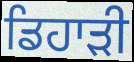
ਡਿਹਾੜੀ